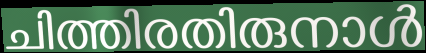
ചിത്തിരതിരുനാൾ